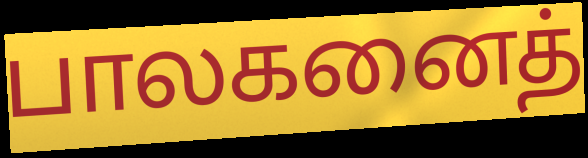
பாலகனைத்